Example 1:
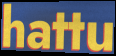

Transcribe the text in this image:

hattu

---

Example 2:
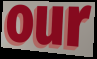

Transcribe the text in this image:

our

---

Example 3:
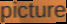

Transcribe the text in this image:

picture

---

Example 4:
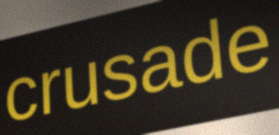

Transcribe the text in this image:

crusade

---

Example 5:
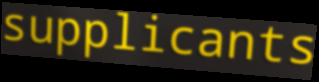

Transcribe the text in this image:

supplicants